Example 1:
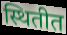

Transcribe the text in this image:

स्थितीत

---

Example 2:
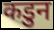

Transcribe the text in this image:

कडुन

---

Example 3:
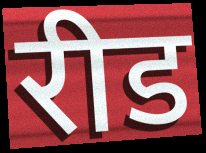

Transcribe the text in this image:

रीड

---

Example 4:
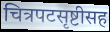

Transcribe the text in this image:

चित्रपटसृष्टीसह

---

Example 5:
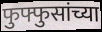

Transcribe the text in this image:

फुफ्फुसांच्या